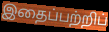
இதைப்பற்றிப்